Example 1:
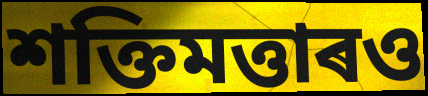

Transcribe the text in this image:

শক্তিমত্তাৰও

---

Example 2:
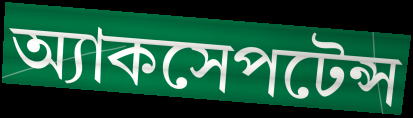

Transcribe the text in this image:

অ্যাকসেপটেন্স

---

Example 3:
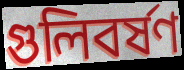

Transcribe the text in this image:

গুলিবৰ্ষণ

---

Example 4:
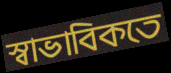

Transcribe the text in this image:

স্বাভাবিকতে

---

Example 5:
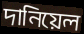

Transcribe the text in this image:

দানিয়েল